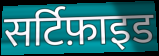
सर्टिफ़ाइड